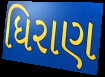
ધિરાણ